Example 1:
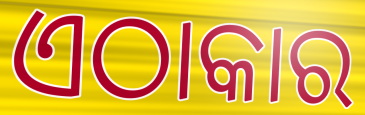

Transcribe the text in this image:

ଏଠାକାର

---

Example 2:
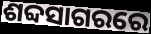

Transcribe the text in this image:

ଶବ୍ଦସାଗରରେ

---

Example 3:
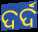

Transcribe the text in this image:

ଦର୍ଦ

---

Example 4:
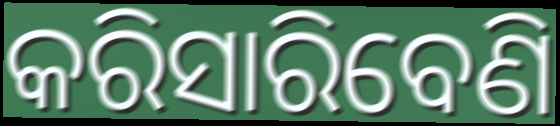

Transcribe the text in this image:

କରିସାରିବେଣି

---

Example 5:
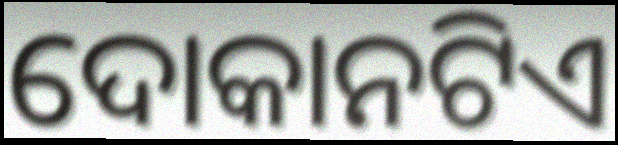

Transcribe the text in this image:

ଦୋକାନଟିଏ